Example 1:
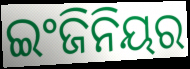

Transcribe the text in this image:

ଇଂଜିନିୟର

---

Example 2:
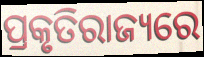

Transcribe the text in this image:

ପ୍ରକୃତିରାଜ୍ୟରେ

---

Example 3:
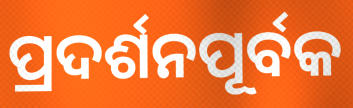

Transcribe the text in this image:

ପ୍ରଦର୍ଶନପୂର୍ବକ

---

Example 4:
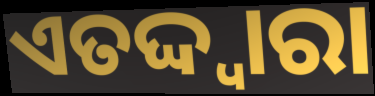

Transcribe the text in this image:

ଏତଦ୍ଦ୍ୱାରା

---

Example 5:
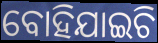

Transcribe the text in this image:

ବୋହିଯାଇଚି